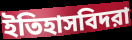
ইতিহাসবিদরা